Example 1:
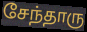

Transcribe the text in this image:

சேந்தாரு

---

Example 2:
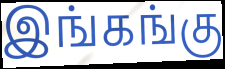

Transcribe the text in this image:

இங்கங்கு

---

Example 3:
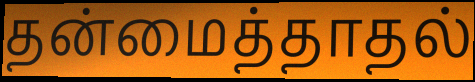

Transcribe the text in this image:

தன்மைத்தாதல்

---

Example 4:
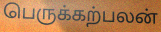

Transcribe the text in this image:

பெருக்கற்பலன்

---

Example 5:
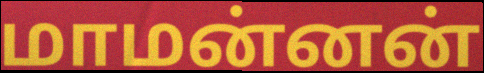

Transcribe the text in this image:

மாமன்னன்